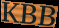
KBB